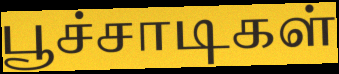
பூச்சாடிகள்